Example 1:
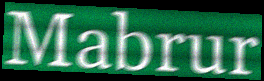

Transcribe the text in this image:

Mabrur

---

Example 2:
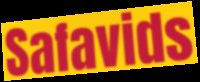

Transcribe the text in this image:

Safavids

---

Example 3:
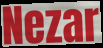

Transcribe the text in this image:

Nezar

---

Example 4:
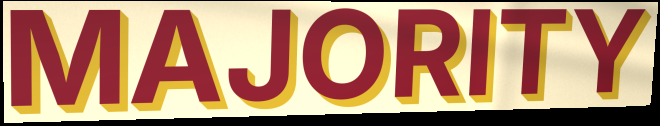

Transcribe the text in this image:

MAJORITY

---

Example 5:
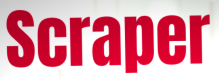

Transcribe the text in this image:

Scraper